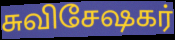
சுவிசேஷகர்